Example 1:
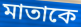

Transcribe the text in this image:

মাতাকে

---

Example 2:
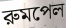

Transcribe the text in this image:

রুমপেল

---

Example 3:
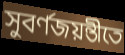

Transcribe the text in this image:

সুবর্ণজয়ন্তীতে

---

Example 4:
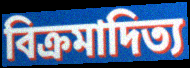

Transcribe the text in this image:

বিক্রমাদিত্য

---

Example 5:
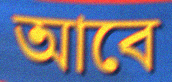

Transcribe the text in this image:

আবে